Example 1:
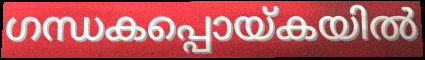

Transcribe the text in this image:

ഗന്ധകപ്പൊയ്കയിൽ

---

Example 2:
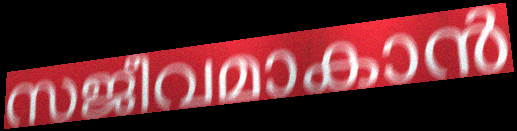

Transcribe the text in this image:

സജീവമാകാൻ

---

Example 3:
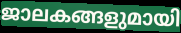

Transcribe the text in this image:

ജാലകങ്ങളുമായി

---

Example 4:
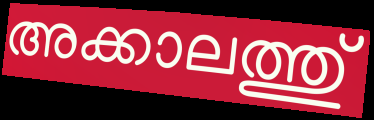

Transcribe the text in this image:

അക്കാലത്തു്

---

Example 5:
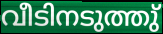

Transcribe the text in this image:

വീടിനടുത്തു്